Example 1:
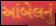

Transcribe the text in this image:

આંબેલનું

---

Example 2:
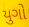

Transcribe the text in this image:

યુગો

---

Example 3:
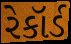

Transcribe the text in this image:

રેકૉર્ડ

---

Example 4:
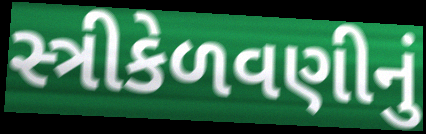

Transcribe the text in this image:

સ્ત્રીકેળવણીનું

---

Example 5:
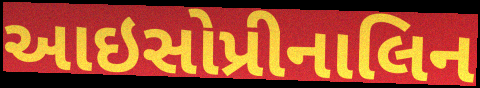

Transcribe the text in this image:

આઇસોપ્રીનાલિન